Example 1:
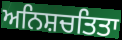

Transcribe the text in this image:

ਅਨਿਸ਼ਚਤਿਤਾ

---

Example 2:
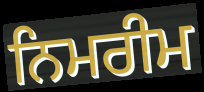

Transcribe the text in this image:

ਨਿਮਰੀਮ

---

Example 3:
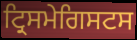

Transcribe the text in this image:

ਟ੍ਰਿਸਮੇਗਿਸਟਸ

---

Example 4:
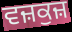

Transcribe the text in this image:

ਵਜ਼ਕੁਜ਼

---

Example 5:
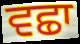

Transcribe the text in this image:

ਵਛਾ